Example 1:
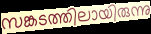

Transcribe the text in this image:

സങ്കടത്തിലായിരുന്നു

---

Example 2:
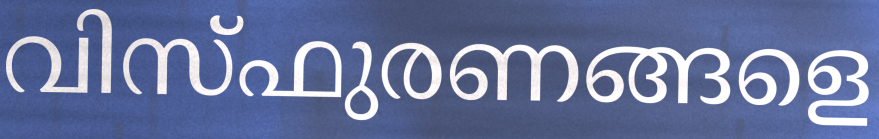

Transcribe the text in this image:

വിസ്ഫുരണങ്ങളെ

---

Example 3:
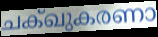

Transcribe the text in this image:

ചക്ഖുകരണാ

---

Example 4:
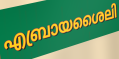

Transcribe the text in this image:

എബ്രായശൈലി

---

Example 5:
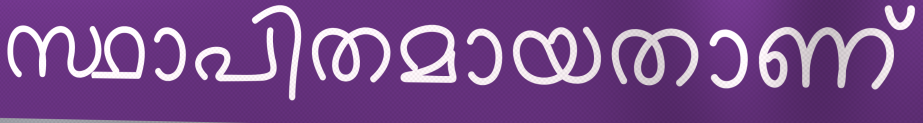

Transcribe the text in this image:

സ്ഥാപിതമായതാണ്